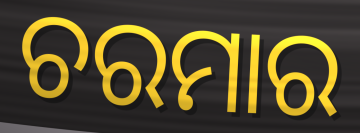
ଚରମାର